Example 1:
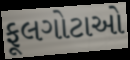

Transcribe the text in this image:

ફૂલગોટાઓ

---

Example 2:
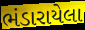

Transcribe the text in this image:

ભંડારાયેલા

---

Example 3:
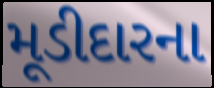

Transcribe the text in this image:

મૂડીદારના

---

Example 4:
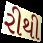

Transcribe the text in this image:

રીથી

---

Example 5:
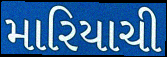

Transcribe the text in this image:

મારિયાચી